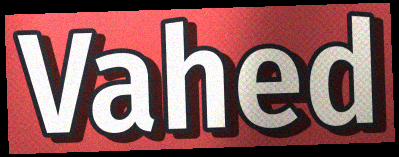
Vahed